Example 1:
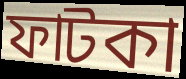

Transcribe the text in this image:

ফাটকা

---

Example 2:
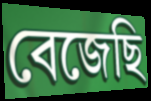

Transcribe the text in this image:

বেজেছি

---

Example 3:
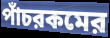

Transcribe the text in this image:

পাঁচরকমের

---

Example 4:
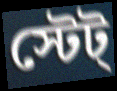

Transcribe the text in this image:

স্টেট্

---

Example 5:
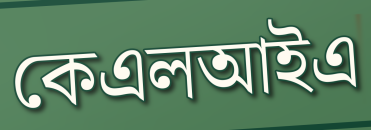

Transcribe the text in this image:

কেএলআইএ